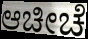
ಆಚೀಚೆ